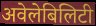
अवेलेबिलिटी